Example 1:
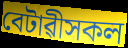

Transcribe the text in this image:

বেটাৱীসকল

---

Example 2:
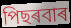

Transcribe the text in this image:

পিছৰবাৰ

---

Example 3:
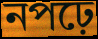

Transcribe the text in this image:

নপঢ়ে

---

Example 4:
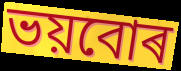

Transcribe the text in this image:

ভয়বোৰ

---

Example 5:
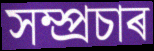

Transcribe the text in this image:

সম্প্ৰচাৰ